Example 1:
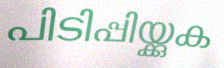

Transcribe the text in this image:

പിടിപ്പിയ്ക്കുക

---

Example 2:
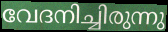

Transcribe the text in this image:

വേദനിച്ചിരുന്നു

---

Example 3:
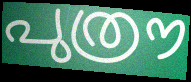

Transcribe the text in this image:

പുത്രൗ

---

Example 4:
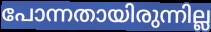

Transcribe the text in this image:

പോന്നതായിരുന്നില്ല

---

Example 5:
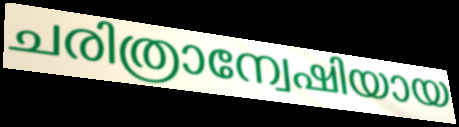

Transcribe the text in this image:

ചരിത്രാന്വേഷിയായ